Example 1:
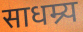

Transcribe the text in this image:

साधम्र्य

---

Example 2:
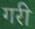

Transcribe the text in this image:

गरी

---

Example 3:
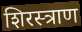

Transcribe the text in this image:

शिरस्त्राण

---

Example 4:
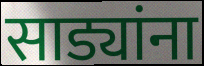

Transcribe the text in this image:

साड्यांना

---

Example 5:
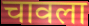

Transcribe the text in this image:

चावला